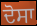
ਦੋਸਾ